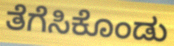
ತೆಗೆಸಿಕೊಂಡು